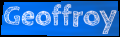
Geoffroy